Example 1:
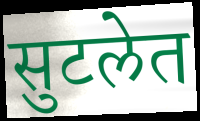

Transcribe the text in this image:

सुटलेत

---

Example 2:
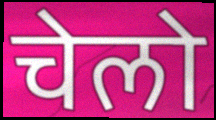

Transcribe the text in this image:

चेलो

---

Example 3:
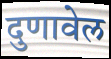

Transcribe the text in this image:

दुणावेल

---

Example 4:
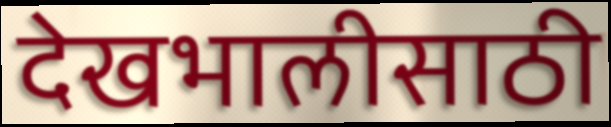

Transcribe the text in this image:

देखभालीसाठी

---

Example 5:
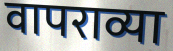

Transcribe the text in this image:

वापराव्या